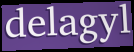
delagyl